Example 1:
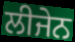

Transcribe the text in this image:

ਲੀਜੇਨ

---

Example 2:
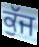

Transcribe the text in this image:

ਕੁੱਜ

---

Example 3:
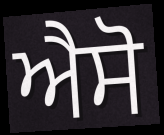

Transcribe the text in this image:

ਐਸੋ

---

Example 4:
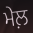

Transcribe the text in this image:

ਮੇਲ਼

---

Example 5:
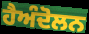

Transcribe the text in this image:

ਹੈਅੰਦੋਲਨ